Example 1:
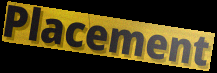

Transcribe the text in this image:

Placement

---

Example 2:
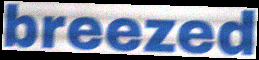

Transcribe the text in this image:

breezed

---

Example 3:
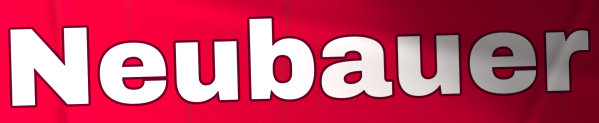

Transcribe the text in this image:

Neubauer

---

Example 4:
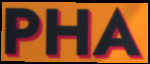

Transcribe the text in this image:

PHA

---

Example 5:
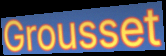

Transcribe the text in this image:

Grousset